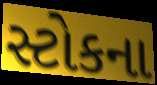
સ્ટોકના